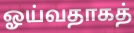
ஓய்வதாகத்